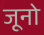
जूनो